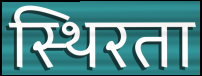
स्थिरता